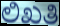
ಲಿಖತಿ